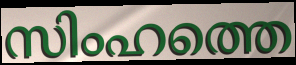
സിംഹത്തെ